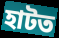
হাটত